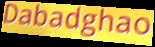
Dabadghao